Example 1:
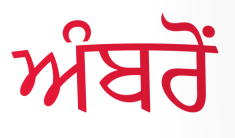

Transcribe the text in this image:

ਅੰਬਰੋਂ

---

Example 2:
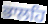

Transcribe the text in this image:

ਭਾਲਹਿ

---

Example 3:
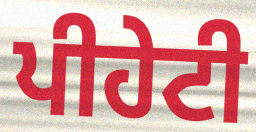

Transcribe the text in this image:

ਪੀਹੇਟੀ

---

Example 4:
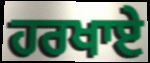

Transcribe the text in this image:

ਹਰਖਾਏ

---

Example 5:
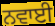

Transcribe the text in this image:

ਨਵਾਈ